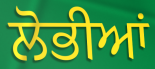
ਲੋਭੀਆਂ